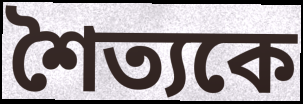
শৈত্যকে